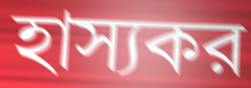
হাস্যকর